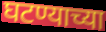
घटण्याच्या